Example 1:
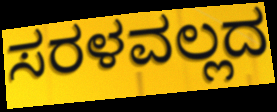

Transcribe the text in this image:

ಸರಳವಲ್ಲದ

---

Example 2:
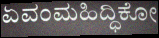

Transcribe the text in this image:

ಏವಂಮಹಿದ್ಧಿಕೋ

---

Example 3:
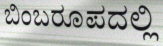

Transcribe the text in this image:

ಬಿಂಬರೂಪದಲ್ಲಿ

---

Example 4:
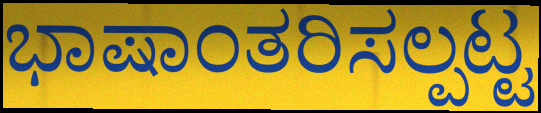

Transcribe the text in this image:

ಭಾಷಾಂತರಿಸಲ್ಪಟ್ಟ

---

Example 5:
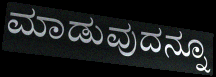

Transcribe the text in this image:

ಮಾಡುವುದನ್ನೂ